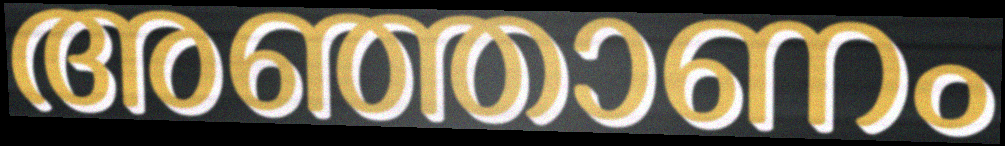
അഞ്ഞാണം